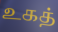
உகத்